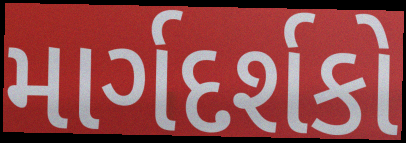
માર્ગદર્શકો